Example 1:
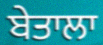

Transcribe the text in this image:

ਬੇਤਾਲਾ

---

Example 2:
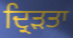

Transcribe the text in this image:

ਦ੍ਰਿੜਤਾ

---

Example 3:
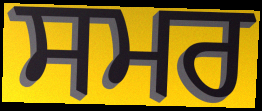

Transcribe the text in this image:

ਸਮਰ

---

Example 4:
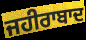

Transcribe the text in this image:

ਜਹੀਰਾਬਾਦ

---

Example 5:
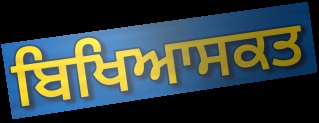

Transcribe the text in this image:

ਬਿਖਿਆਸਕਤ